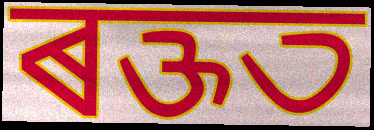
ৰক্তত